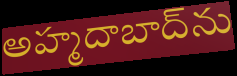
అహ్మదాబాద్‌ను